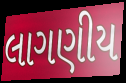
લાગણીય